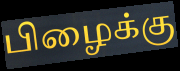
பிழைக்கு